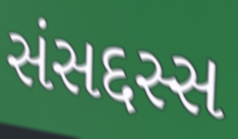
સંસદ્દસ્સ